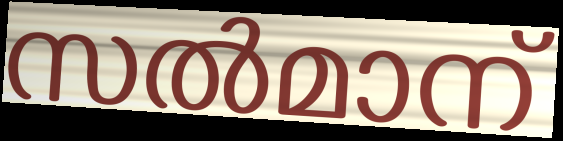
സൽമാന്